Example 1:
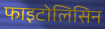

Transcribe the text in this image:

फाइटोलिसिन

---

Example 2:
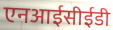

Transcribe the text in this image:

एनआईसीईडी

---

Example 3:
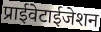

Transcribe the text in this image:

प्राईवेटाईजेशन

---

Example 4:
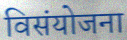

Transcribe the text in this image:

विसंयोजना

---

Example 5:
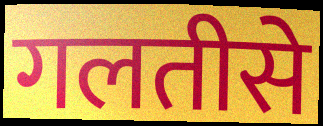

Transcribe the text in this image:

गलतीसे